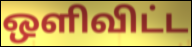
ஒளிவிட்ட